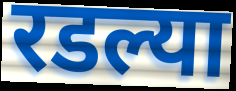
रडल्या